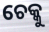
ଚେକ୍କୁ